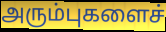
அரும்புகளைச்